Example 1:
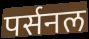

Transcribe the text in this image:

पर्सनल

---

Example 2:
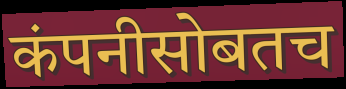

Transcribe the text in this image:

कंपनीसोबतच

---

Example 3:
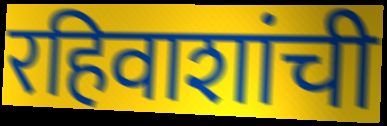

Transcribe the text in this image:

रहिवाशांची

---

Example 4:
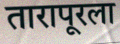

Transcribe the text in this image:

तारापूरला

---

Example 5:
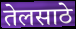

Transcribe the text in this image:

तेलसाठे